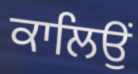
ਕਾਲਿਉਂ